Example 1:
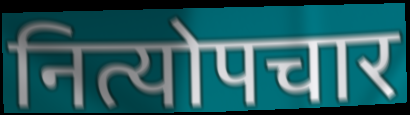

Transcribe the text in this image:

नित्योपचार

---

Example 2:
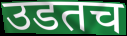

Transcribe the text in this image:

उडतच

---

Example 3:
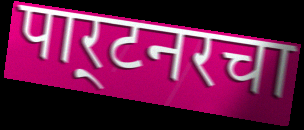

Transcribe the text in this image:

पार्टनरचा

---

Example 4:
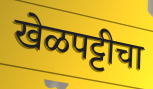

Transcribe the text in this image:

खेळपट्टीचा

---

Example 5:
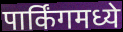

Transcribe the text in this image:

पार्किंगमध्ये